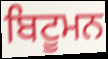
ਬਿਟੂਮਨ